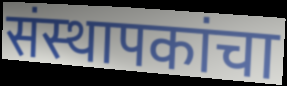
संस्थापकांचा